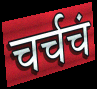
चर्चचं